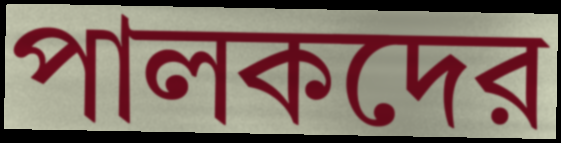
পালকদের